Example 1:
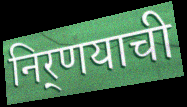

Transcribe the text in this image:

निर्णयाची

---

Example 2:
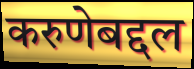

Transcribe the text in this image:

करुणेबद्दल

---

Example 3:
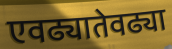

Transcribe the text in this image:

एवढ्यातेवढ्या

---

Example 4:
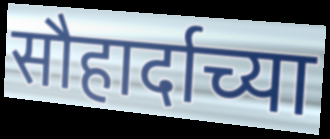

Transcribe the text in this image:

सौहार्दाच्या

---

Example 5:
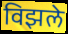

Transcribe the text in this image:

विझले